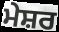
ਮੇਸ਼ਰ